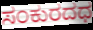
ಸಂಕುರದಧ